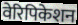
वेरिपिकेशन